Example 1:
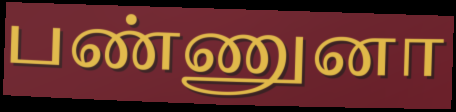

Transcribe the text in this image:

பண்ணுனா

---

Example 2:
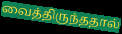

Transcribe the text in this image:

வைத்திருந்ததால்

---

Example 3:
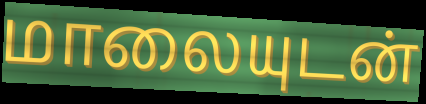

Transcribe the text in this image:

மாலையுடன்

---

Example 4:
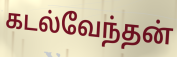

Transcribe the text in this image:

கடல்வேந்தன்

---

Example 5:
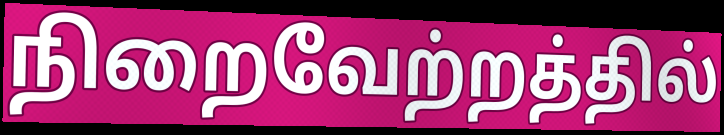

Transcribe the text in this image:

நிறைவேற்றத்தில்